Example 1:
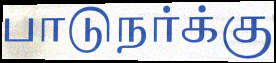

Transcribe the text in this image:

பாடுநர்க்கு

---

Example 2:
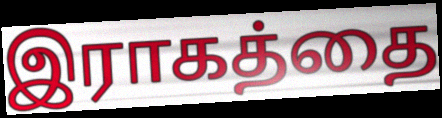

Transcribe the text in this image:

இராகத்தை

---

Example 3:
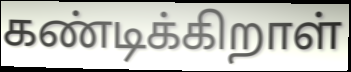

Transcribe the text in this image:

கண்டிக்கிறாள்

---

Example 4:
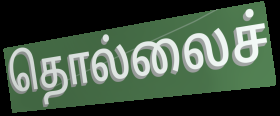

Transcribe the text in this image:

தொல்லைச்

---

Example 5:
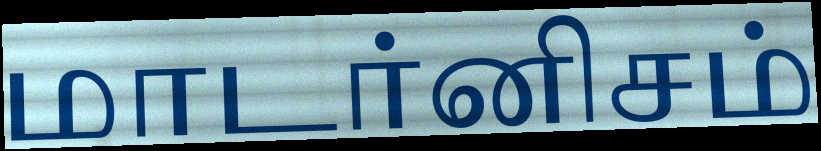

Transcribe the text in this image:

மாடர்னிசம்